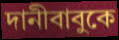
দানীবাবুকে